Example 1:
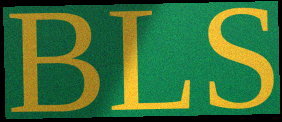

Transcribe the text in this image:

BLS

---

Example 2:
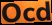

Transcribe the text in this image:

Ocd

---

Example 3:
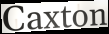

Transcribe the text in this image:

Caxton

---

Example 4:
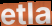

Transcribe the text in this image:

etla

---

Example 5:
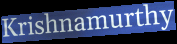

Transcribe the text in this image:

Krishnamurthy